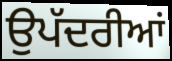
ਉਪੱਦਰੀਆਂ